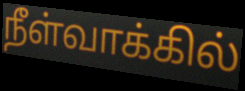
நீள்வாக்கில்